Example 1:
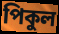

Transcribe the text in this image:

পিকুল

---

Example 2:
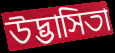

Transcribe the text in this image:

উদ্ভাসিতা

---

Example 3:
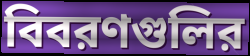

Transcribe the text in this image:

বিবরণগুলির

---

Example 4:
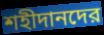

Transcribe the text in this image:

শহীদানদের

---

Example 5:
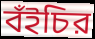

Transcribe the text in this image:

বঁইচির